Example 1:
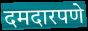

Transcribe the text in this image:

दमदारपणे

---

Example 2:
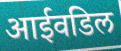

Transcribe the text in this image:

आईवडिल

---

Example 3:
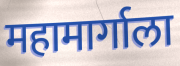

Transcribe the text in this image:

महामार्गाला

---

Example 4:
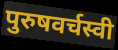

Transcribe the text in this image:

पुरुषवर्चस्वी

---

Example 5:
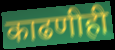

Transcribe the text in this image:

काढणीही